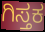
ಗಿಸ್ತಕ